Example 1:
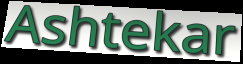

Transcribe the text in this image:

Ashtekar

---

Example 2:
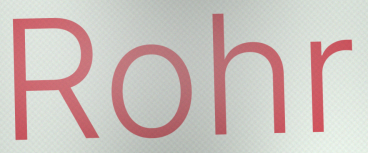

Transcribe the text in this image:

Rohr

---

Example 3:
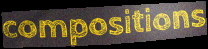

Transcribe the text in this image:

compositions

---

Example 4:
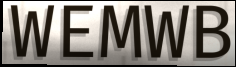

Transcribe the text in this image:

WEMWB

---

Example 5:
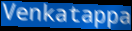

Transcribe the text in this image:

Venkatappa